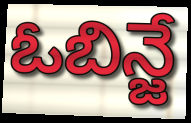
ఓబిన్జే